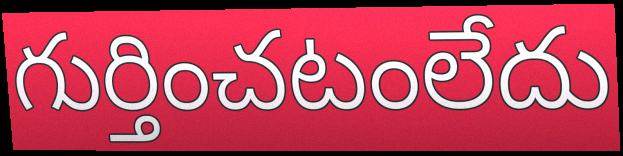
గుర్తించటంలేదు